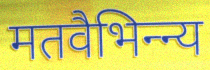
मतवैभिन्न्य